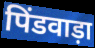
पिंडवाड़ा